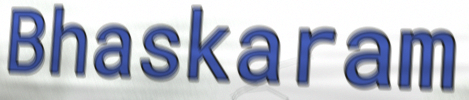
Bhaskaram